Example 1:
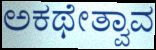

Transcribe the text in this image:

ಅಕಥೇತ್ವಾವ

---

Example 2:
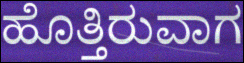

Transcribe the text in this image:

ಹೊತ್ತಿರುವಾಗ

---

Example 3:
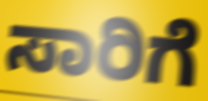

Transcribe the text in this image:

ಸಾರಿಗೆ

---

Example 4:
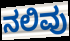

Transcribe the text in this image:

ನಲಿವು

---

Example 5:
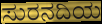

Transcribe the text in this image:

ಸುರನದಿಯ